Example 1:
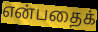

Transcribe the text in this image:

என்பதைக்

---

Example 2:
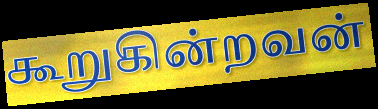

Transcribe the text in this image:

கூறுகின்றவன்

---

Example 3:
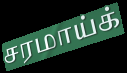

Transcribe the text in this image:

சரமாய்க்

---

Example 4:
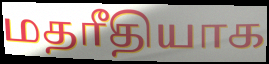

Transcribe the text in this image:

மதரீதியாக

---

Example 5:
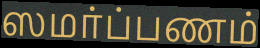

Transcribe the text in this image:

ஸமர்ப்பணம்